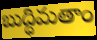
బుద్ధిమతాం